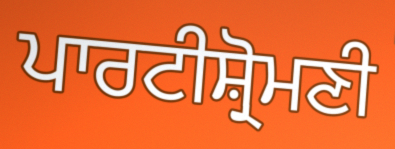
ਪਾਰਟੀਸ਼੍ਰੋਮਣੀ